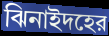
ঝিনাইদহের